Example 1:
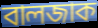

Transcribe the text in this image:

বালজাক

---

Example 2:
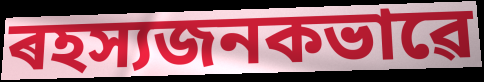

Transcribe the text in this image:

ৰহস্যজনকভাৱে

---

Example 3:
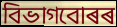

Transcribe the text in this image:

বিভাগবোৰৰ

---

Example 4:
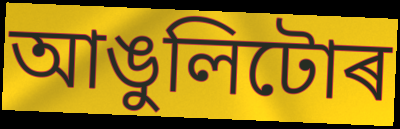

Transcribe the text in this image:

আঙুলিটোৰ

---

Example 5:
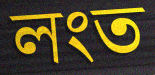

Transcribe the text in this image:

লংত